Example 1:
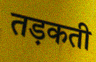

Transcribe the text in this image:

तड़कती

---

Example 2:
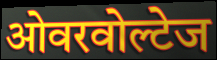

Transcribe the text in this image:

ओवरवोल्टेज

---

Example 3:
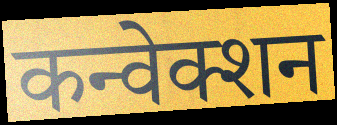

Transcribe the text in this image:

कन्वेक्शन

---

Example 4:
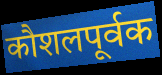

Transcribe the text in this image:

कौशलपूर्वक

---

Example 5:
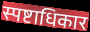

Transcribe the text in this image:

स्पष्टाधिकार